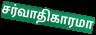
சர்வாதிகாரமா